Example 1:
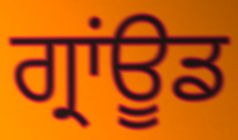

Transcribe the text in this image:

ਗ੍ਰਾਂਊਡ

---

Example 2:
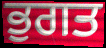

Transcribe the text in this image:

ਭੁਗਤ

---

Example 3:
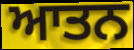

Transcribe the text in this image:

ਆਤਨ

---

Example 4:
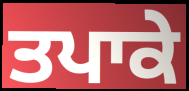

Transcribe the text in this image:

ਤਪਾਕੇ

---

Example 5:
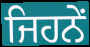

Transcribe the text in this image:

ਜਿਹਨੇਂ